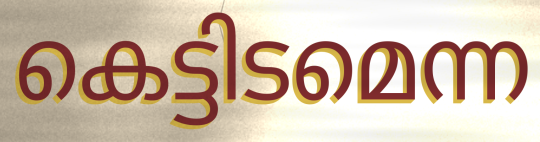
കെട്ടിടമെന്ന